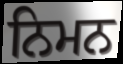
ਨਿਮਨ